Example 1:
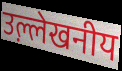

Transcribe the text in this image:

उल्ल़ेखनीय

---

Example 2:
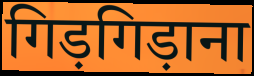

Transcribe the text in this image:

गिड़गिड़ाना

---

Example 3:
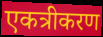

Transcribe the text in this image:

एकत्रीकरण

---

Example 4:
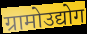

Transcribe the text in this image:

ग्रामोउद्योग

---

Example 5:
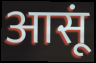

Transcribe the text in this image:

आसूं